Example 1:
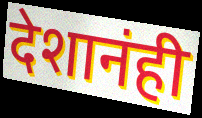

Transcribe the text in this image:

देशानंही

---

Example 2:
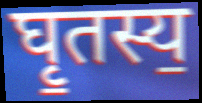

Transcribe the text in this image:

घृ॒तस्य॒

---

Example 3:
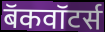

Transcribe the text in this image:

बॅकवॉटर्स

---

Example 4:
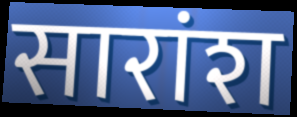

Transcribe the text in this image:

सारांश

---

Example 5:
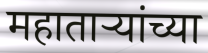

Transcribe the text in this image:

महाताऱ्यांच्या